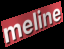
meline